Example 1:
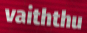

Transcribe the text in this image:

vaiththu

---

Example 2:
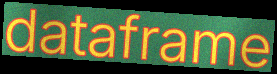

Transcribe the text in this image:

dataframe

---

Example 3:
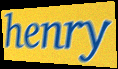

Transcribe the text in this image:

henry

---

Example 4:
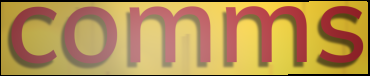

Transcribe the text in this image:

comms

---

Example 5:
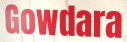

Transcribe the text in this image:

Gowdara